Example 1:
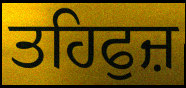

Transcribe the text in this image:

ਤਹਿਫੁਜ਼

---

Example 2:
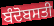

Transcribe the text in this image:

ਬੰਦੋਬਸਤੀ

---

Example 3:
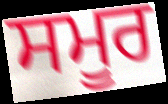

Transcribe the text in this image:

ਸਮੂਰ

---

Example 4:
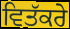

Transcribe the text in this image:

ਵਿਤੱਕਰੇ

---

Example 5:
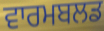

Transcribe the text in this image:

ਵਾਰਮਬਲਡ